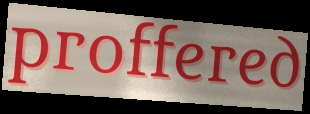
proffered